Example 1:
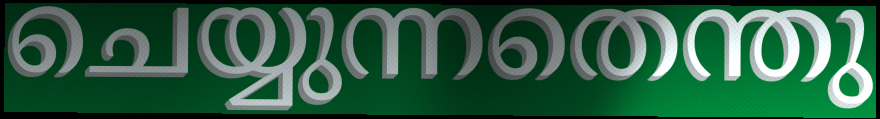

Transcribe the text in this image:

ചെയ്യുന്നതെന്തു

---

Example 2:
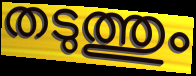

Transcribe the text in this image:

തടുത്തും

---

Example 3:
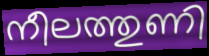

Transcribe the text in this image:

നീലത്തുണി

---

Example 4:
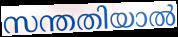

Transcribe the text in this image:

സന്തതിയാൽ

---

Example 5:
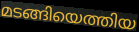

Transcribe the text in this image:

മടങ്ങിയെത്തിയ